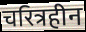
चरित्रहीन